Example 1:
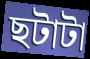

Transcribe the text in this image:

ছটাটা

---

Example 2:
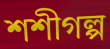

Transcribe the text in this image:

শশীগল্প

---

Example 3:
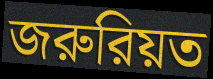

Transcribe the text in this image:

জরুরিয়ত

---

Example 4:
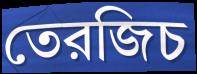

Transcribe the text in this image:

তেরজিচ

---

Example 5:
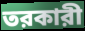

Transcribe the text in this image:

তরকারী